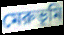
মেরুভূমি